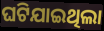
ଘଟିଯାଇଥିଲା